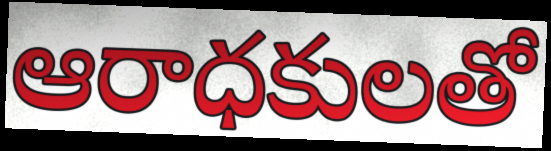
ఆరాధకులతో